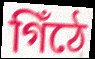
গিঁঠে